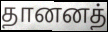
தானனத்